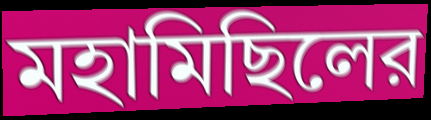
মহামিছিলের